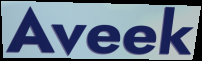
Aveek